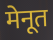
मेनूत